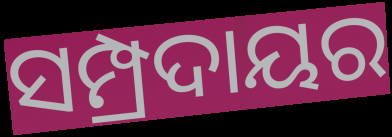
ସମ୍ପ୍ରଦାୟର